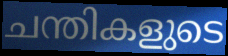
ചന്തികളുടെ